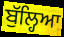
ਬੁੱਲ੍ਹਿਆ